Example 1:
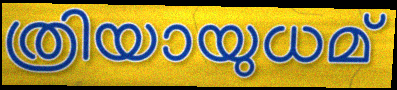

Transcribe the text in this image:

ത്രിയായുധമ്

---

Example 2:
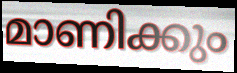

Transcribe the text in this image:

മാണിക്കും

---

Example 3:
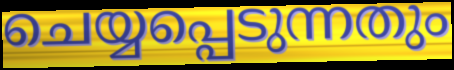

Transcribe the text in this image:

ചെയ്യപ്പെടുന്നതും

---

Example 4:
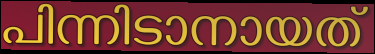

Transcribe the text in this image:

പിന്നിടാനായത്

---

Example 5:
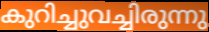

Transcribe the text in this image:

കുറിച്ചുവച്ചിരുന്നു